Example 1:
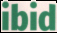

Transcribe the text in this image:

ibid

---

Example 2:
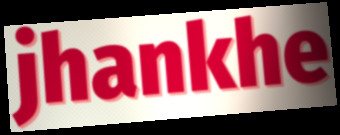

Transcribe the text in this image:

jhankhe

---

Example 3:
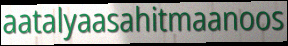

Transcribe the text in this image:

aatalyaasahitmaanoos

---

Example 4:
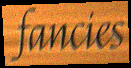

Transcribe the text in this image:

fancies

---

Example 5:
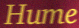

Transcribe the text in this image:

Hume